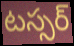
టస్సర్